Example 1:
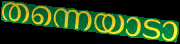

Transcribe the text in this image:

തന്നെയാടാ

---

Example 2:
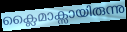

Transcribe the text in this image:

ക്ലൈമാക്സായിരുന്നു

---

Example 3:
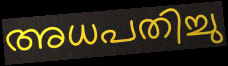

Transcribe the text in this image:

അധപതിച്ചു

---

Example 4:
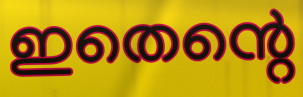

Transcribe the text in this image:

ഇതെന്റെ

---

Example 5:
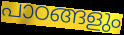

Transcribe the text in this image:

പാഠങ്ങളും